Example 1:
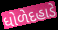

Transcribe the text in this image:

ધોળેદહાડે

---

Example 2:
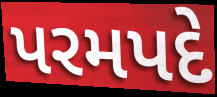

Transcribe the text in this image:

પરમપદે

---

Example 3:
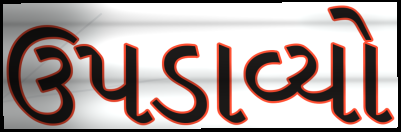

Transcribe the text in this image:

ઉપડાવ્યો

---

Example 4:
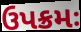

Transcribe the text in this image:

ઉપક્રમઃ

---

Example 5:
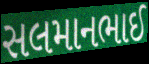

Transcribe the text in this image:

સલમાનભાઈ